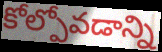
కోల్పోవడాన్ని